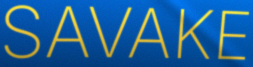
SAVAKE